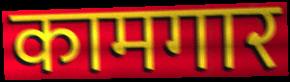
कामगार